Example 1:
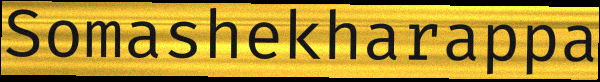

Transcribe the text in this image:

Somashekharappa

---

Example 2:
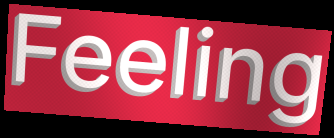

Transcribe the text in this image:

Feeling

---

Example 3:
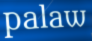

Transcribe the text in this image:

palaw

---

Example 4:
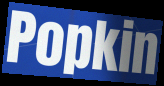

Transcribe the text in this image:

Popkin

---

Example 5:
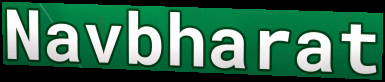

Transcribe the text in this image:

Navbharat